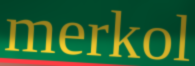
merkol